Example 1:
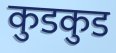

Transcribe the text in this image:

कुडकुड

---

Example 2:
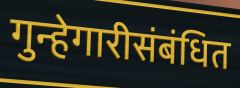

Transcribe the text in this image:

गुन्हेगारीसंबंधित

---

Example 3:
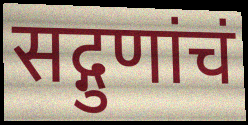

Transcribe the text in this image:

सद्गुणांचं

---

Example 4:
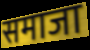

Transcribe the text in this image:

समाजा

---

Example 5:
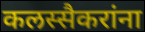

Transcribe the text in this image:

कलस्सैकरांना